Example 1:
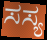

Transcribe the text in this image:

ಸಸ್ಯ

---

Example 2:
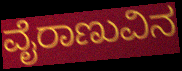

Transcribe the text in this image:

ವೈರಾಣುವಿನ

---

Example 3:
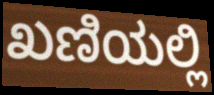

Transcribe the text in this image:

ಖಣಿಯಲ್ಲಿ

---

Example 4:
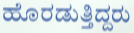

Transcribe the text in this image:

ಹೊರಡುತ್ತಿದ್ದರು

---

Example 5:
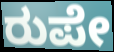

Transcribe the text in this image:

ರುಪೇ